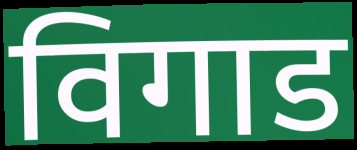
विगाड